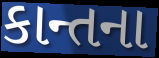
કાન્તના